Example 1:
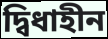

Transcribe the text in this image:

দ্বিধাহীন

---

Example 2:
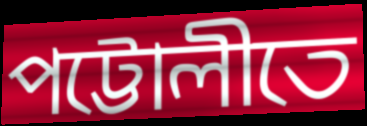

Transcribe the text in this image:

পট্টোলীতে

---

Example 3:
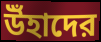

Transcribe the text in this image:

উঁহাদের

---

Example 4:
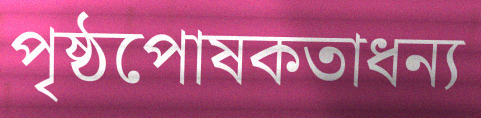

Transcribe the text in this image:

পৃষ্ঠপোষকতাধন্য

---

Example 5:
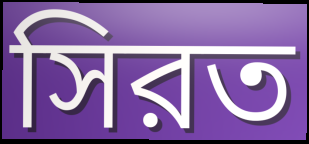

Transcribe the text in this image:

সিরত